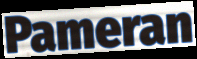
Pameran